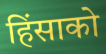
हिंसाको